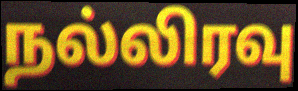
நல்லிரவு